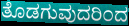
ತೊಡಗುವುದರಿಂದ